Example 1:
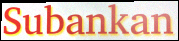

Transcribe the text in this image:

Subankan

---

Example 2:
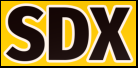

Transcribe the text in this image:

SDX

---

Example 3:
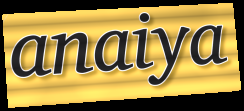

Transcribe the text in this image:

anaiya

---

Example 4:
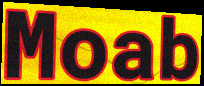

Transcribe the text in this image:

Moab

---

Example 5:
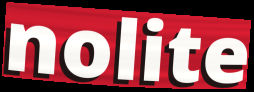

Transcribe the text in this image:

nolite